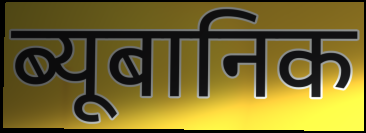
ब्यूबानिक